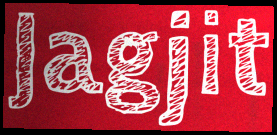
Jagjit